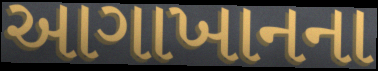
આગાખાનના